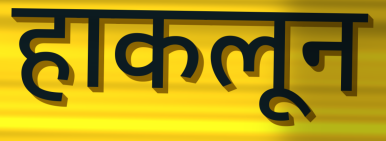
हाकलून